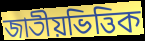
জাতীয়ভিত্তিক